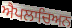
ਐਪਲਾਚਿਅਨ